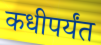
कधीपर्यंत